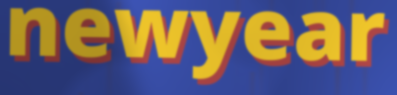
newyear